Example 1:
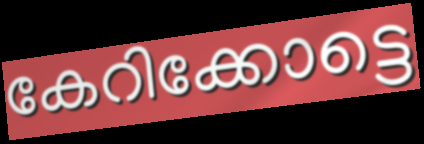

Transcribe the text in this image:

കേറിക്കോട്ടെ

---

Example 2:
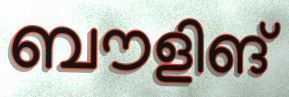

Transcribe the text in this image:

ബൗളിങ്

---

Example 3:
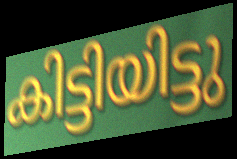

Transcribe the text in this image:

കിട്ടിയിട്ടു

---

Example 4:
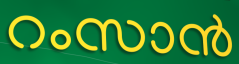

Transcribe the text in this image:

റംസാൻ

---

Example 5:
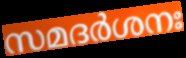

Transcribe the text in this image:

സമദർശനഃ